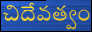
చిదేవత్వం